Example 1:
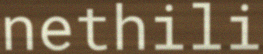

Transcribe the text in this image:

nethili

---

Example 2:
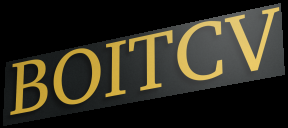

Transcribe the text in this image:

BOITCV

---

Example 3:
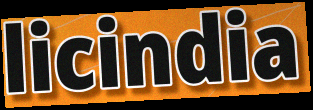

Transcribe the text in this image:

licindia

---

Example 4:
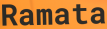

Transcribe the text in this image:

Ramata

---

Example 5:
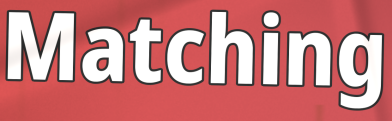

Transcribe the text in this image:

Matching